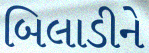
બિલાડીને